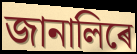
জানালিৰে